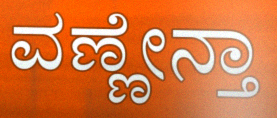
ವಣ್ಣೇನ್ತಾ